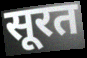
सूरत